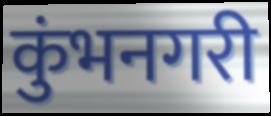
कुंभनगरी